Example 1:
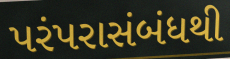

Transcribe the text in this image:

પરંપરાસંબંધથી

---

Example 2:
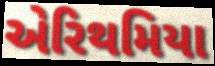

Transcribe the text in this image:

એરિથમિયા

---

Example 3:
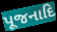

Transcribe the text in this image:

પૂજનાદિ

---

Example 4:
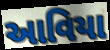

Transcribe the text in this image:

આવિયા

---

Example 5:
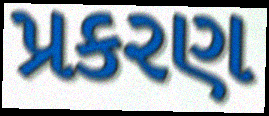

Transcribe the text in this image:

પ્રકરણ